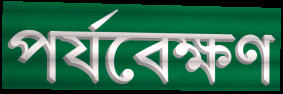
পৰ্যবেক্ষণ